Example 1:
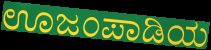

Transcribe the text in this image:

ಊಜಂಪಾಡಿಯ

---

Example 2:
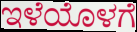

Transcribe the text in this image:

ಇಳೆಯೊಳಗೆ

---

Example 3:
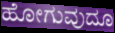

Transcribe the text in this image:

ಹೋಗುವುದೂ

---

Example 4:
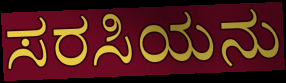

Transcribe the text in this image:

ಸರಸಿಯನು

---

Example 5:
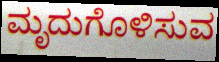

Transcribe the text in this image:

ಮೃದುಗೊಳಿಸುವ